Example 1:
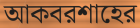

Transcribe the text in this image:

আকবরশাহের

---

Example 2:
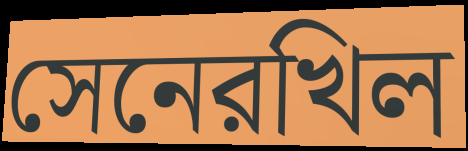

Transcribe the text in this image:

সেনেরখিল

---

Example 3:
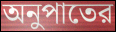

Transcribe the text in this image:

অনুপাতের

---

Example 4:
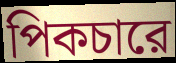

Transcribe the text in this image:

পিকচারে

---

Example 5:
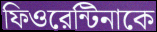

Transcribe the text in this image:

ফিওরেন্টিনাকে